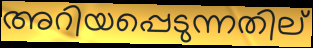
അറിയപ്പെടുന്നതില്